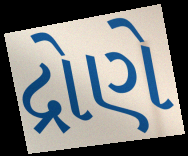
દ્રોણે